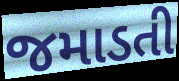
જમાડતી